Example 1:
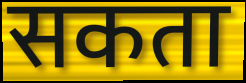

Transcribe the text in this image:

सकता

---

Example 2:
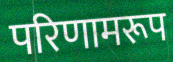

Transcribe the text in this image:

परिणामरूप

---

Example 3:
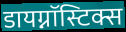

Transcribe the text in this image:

डायग्नॉस्टिक्स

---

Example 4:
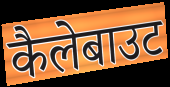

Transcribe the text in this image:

कैलेबाउट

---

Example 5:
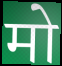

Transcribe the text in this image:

मो